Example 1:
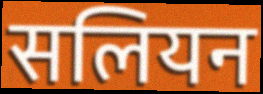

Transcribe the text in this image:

सलियन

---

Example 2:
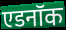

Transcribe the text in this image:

एडनॉक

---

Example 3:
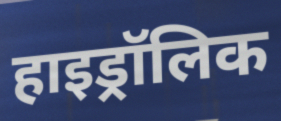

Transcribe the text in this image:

हाइड्रॉलिक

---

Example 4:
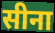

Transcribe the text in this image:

सीना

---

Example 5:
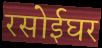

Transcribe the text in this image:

रसोईघर